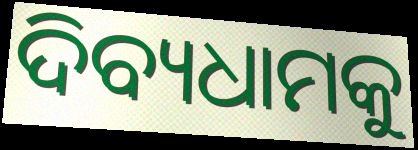
ଦିବ୍ୟଧାମକୁ